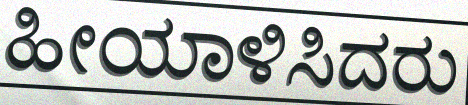
ಹೀಯಾಳಿಸಿದರು